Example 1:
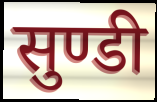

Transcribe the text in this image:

सुण्डी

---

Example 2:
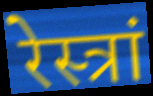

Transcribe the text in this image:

रेस्त्रां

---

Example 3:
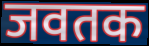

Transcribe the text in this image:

जवतक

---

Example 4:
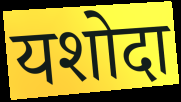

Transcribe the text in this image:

यशोदा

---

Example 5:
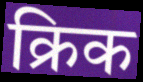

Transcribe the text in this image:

क्रिक